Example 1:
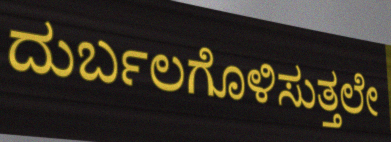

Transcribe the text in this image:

ದುರ್ಬಲಗೊಳಿಸುತ್ತಲೇ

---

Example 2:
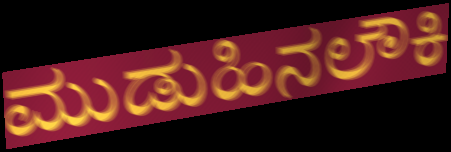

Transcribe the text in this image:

ಮುಡುಹಿನಲೌಕಿ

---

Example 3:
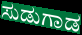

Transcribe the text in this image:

ಸುಡುಗಾಡ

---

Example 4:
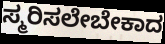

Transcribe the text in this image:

ಸ್ಮರಿಸಲೇಬೇಕಾದ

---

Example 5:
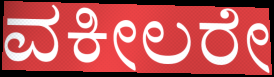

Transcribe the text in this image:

ವಕೀಲರೇ